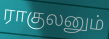
ராகுலனும்